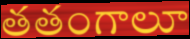
తతంగాలూ